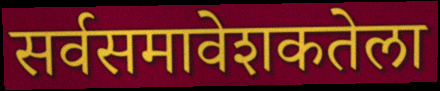
सर्वसमावेशकतेला